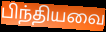
பிந்தியவை